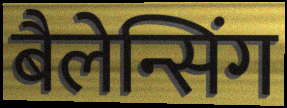
बैलेन्सिंग